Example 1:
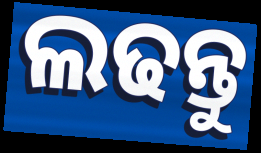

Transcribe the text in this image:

ଲଢନ୍ତୁ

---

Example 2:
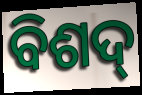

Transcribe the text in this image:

ବିଶଦ୍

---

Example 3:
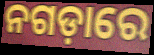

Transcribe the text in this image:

ନଗଡ଼ାରେ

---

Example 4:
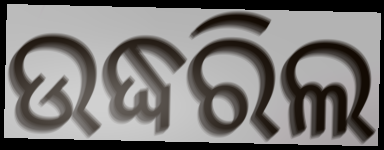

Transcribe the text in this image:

ଉଦ୍ଧରିଲ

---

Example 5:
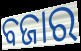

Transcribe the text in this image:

ବଜାର